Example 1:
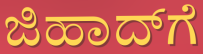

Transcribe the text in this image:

ಜಿಹಾದ್‌ಗೆ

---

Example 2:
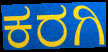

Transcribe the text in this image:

ಕರಗಿ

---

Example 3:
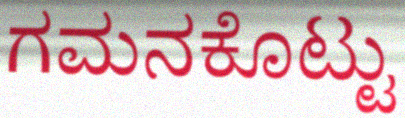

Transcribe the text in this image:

ಗಮನಕೊಟ್ಟು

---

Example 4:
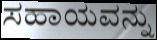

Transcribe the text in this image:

ಸಹಾಯವನ್ನು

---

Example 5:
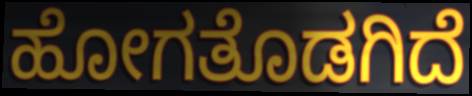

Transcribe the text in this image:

ಹೋಗತೊಡಗಿದೆ